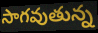
సాగవుతున్న